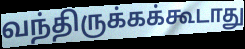
வந்திருக்கக்கூடாது